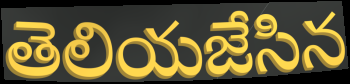
తెలియజేసిన